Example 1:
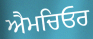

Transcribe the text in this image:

ਐਮਚਿਓਰ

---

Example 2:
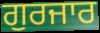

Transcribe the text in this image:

ਗੁਰਜਾਰ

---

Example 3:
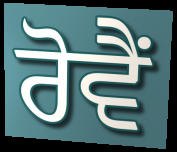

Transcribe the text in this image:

ਰੋਵੈਂ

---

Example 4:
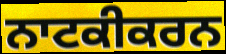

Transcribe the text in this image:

ਨਾਟਕੀਕਰਨ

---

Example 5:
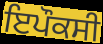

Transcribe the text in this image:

ਇਪੌਕਸੀ